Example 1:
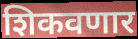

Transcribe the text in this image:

शिकवणार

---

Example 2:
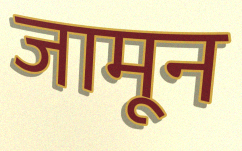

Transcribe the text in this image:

जामून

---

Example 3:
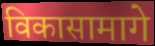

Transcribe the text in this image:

विकासामागे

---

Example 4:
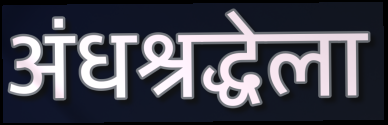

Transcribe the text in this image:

अंधश्रद्धेला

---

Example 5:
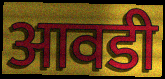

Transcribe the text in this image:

आवडी